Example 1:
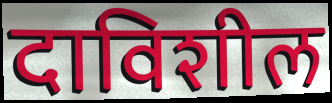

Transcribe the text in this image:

दाविशील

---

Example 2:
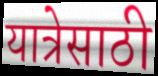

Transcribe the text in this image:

यात्रेसाठी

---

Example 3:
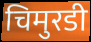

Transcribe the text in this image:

चिमुरडी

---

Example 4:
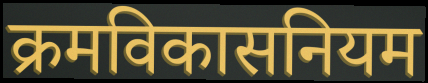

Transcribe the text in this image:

क्रमविकासनियम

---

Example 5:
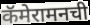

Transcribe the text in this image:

कॅमेरामनची